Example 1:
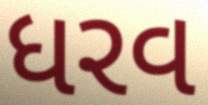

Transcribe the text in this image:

ધરવ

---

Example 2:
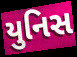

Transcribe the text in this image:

યુનિસ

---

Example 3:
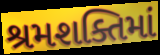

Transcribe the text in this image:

શ્રમશક્તિમાં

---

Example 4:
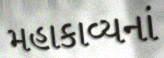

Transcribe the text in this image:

મહાકાવ્યનાં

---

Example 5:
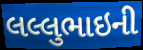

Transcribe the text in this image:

લલ્લુભાઇની